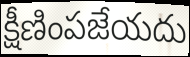
క్షీణింపజేయదు